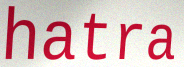
hatra